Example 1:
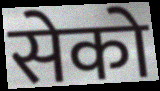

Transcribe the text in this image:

सेको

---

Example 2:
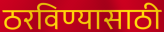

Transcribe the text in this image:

ठरविण्यासाठी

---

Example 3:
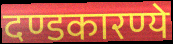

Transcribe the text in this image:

दण्डकारण्ये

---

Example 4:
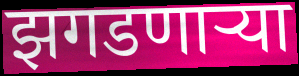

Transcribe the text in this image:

झगडणाऱ्या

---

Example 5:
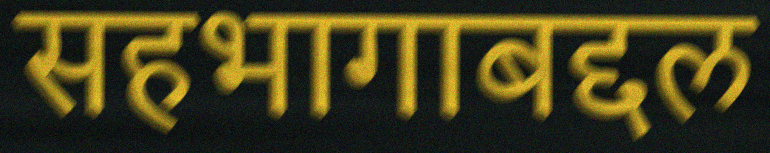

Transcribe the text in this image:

सहभागाबद्दल